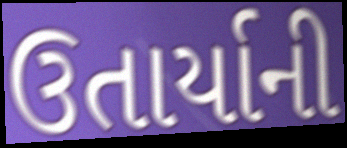
ઉતાર્યાની